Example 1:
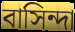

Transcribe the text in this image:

বাসিন্দা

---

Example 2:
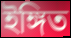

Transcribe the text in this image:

ইঙ্গিত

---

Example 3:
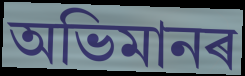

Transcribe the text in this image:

অভিমানৰ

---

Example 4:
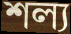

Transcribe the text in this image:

শল্য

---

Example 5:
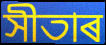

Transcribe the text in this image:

সীতাৰ